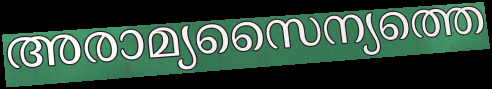
അരാമ്യസൈന്യത്തെ